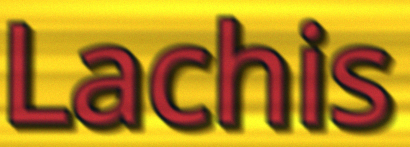
Lachis